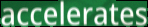
accelerates